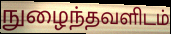
நுழைந்தவளிடம்